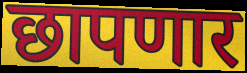
छापणार